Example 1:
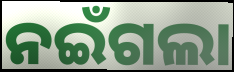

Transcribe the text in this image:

ନଇଁଗଲା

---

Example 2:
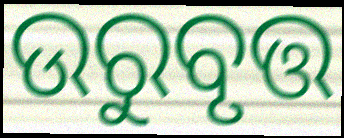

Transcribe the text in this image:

ଉରୁବୃତ୍ତ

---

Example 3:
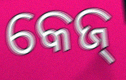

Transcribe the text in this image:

କେଜ୍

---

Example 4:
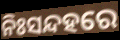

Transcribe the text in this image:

ନିଃସନ୍ଦହରେ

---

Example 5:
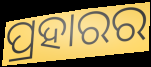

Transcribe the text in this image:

ପ୍ରହାରର